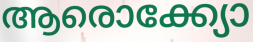
ആരൊക്ക്യോ